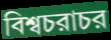
বিশ্বচরাচর